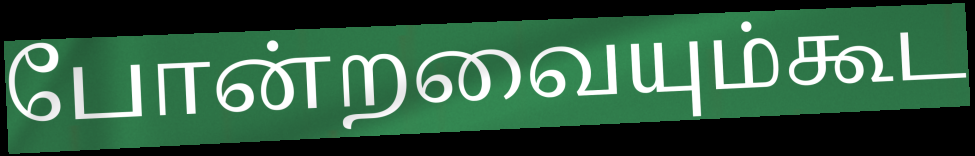
போன்றவையும்கூட